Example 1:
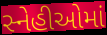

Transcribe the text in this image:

સ્નેહીઓમાં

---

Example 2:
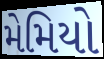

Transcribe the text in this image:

મેમિયો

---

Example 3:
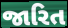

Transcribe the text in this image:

જારિત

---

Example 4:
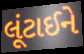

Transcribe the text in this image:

લૂંટાઈને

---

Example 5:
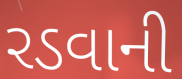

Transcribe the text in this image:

રડવાની